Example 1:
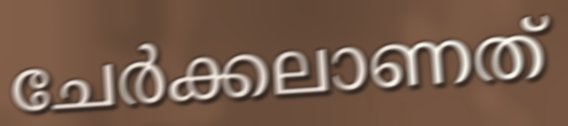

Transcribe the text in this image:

ചേർക്കലാണത്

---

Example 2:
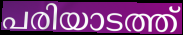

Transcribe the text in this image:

പരിയാടത്ത്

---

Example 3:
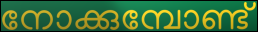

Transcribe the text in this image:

നോക്കുമ്പോണ്ട്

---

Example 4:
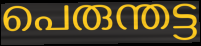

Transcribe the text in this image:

പെരുന്തട്ട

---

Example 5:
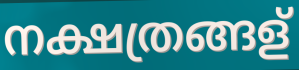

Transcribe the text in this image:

നക്ഷത്രങ്ങള്